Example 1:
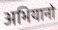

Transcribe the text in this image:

अभियानो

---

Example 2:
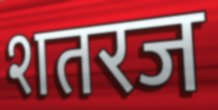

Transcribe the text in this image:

शतरज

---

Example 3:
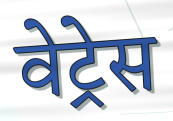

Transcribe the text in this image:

वेट्रेस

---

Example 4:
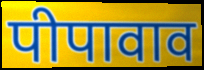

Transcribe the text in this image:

पीपावाव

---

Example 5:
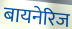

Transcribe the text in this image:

बायनेरिज